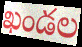
ఖండల